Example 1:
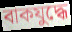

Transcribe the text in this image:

বাকযুদ্ধে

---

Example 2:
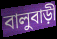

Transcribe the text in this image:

বালুবাড়ী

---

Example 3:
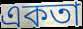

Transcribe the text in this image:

একতা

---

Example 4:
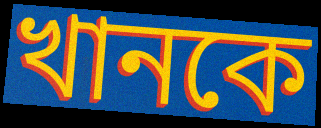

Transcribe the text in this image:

খানকে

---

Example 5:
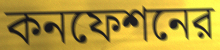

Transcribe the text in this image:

কনফেশনের